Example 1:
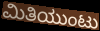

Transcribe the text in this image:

ಮಿತಿಯುಂಟು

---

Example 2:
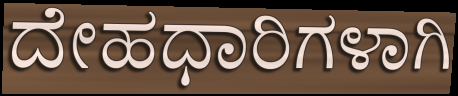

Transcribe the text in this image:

ದೇಹಧಾರಿಗಳಾಗಿ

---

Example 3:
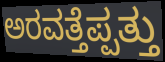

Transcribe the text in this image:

ಅರವತ್ತೆಪ್ಪತ್ತು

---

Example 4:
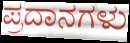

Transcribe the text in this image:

ಪ್ರದಾನಗಳು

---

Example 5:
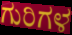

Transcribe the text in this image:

ಗುರಿಗಳ